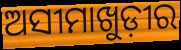
ଅସୀମାଖୁଡ଼ୀର